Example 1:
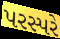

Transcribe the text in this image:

પરસ્પરે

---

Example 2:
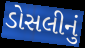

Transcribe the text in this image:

ડોસલીનું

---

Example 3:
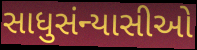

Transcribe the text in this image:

સાધુસંન્યાસીઓ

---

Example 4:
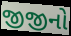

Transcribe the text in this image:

જીજીનો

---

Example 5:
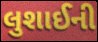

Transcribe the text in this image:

લુશાઈની